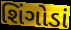
શિંગોડાં